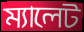
ম্যালেট